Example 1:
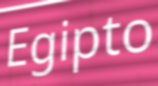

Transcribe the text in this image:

Egipto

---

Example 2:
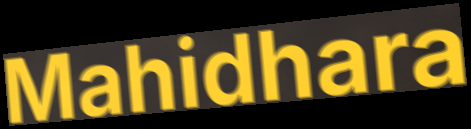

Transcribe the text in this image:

Mahidhara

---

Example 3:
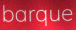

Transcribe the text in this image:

barque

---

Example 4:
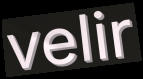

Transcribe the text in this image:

velir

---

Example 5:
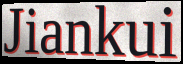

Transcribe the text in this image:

Jiankui